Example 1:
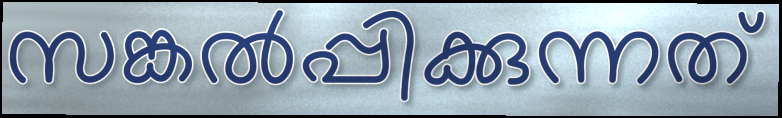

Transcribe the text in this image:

സങ്കൽപ്പിക്കുന്നത്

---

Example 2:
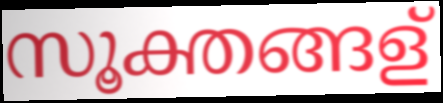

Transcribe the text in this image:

സൂക്തങ്ങള്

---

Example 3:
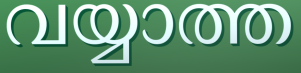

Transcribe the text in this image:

വയ്യാത്ത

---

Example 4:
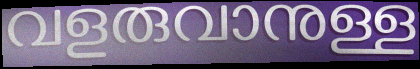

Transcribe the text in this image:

വളരുവാനുള്ള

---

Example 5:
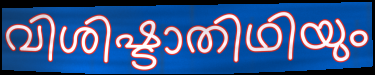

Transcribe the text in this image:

വിശിഷ്ടാതിഥിയും